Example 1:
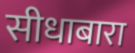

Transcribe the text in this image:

सीधाबारा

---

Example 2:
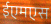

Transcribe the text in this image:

ईएमएस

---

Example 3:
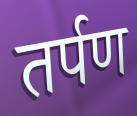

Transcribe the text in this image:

तर्पण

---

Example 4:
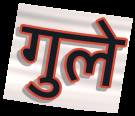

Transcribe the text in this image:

गुले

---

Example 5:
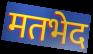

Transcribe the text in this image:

मतभेद